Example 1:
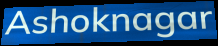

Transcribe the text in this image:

Ashoknagar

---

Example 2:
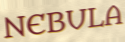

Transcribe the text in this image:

NEBULA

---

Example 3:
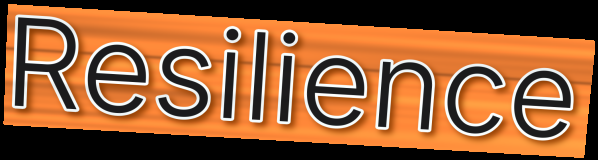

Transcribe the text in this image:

Resilience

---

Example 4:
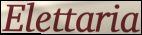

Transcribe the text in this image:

Elettaria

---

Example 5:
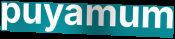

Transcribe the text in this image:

puyamum